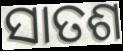
ସାତଶ